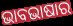
ଭାବଭାଷାର